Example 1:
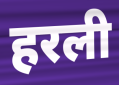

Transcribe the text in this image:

हरली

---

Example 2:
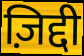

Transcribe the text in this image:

ज़िद्दी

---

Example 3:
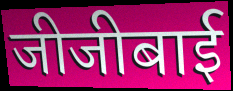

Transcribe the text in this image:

जीजीबाई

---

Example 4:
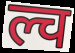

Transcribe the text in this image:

ल्च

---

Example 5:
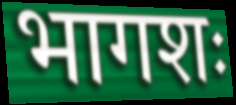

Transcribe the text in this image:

भागशः